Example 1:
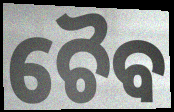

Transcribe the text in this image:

ଚୈବ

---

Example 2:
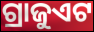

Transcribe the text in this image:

ଗ୍ରାଜୁଏଟ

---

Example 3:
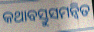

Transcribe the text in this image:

କଥାବସ୍ତୁସମନ୍ୱିତ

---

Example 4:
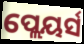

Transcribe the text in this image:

ପ୍ଲେୟର୍ସ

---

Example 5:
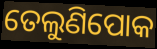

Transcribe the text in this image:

ତେଲୁଣିପୋକ